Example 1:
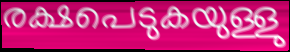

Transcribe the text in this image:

രക്ഷപെടുകയുള്ളു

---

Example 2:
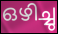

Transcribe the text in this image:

ഒഴിച്ചു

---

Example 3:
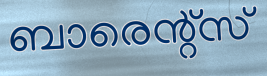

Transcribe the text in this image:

ബാരെന്റ്സ്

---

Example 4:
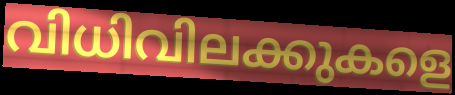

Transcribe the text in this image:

വിധിവിലക്കുകളെ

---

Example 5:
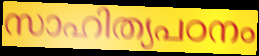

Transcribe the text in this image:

സാഹിത്യപഠനം